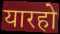
यारहो